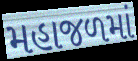
મહાજળમાં